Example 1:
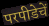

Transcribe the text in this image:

परपीडेचें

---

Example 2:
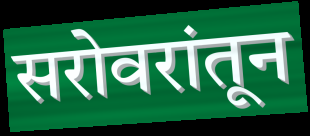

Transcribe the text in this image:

सरोवरांतून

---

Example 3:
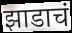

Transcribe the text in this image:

झाडाचं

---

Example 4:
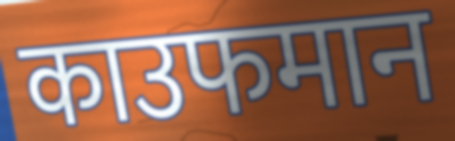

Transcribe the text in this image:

काउफमान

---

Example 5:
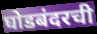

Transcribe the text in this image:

घोडबंदरची